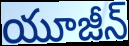
యూజీన్